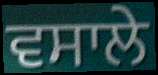
ਵਸਾਲੇ